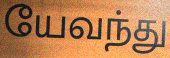
யேவந்து